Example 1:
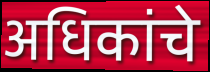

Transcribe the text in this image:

अधिकांचे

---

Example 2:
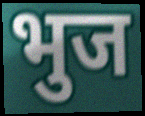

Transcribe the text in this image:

भुज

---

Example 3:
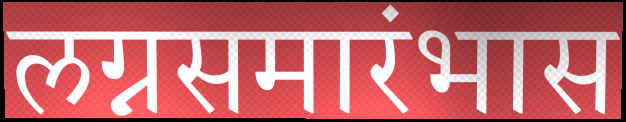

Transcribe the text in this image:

लग्नसमारंभास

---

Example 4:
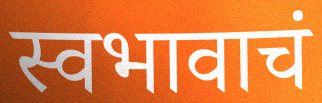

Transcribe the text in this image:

स्वभावाचं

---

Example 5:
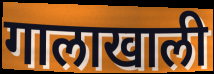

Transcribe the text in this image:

गालाखाली